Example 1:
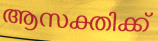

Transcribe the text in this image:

ആസക്തിക്ക്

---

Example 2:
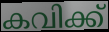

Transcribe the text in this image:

കവിക്ക്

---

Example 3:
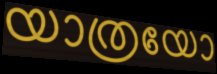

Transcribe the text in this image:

യാത്രയോ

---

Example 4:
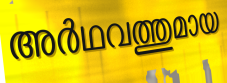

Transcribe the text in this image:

അർഥവത്തുമായ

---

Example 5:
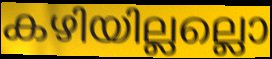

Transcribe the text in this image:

കഴിയില്ലല്ലൊ